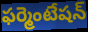
ఫర్మెంటేషన్